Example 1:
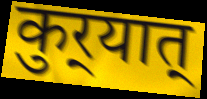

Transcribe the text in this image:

कुर्यात्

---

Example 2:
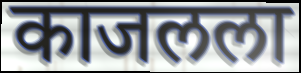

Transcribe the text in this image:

काजलला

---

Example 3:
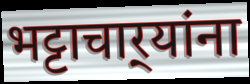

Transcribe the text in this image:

भट्टाचार्यांना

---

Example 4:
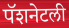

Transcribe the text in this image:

पॅशनेटली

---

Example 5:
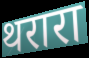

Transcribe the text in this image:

थरारा